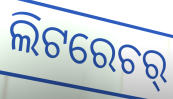
ଲିଟରେଚର୍